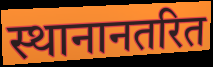
स्थानानतरित